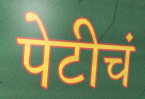
पेटीचं